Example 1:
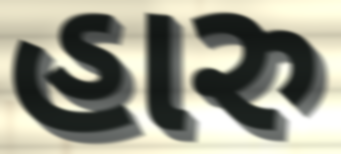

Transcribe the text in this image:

હારુ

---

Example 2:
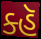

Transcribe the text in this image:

ક્હૅ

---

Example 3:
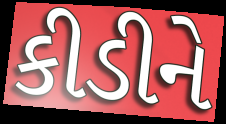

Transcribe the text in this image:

કીડીને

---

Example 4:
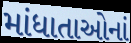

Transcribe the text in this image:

માંધાતાઓનાં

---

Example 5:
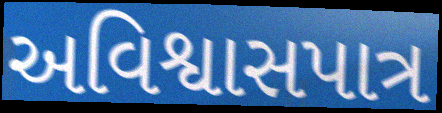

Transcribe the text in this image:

અવિશ્વાસપાત્ર